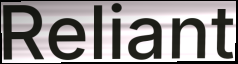
Reliant